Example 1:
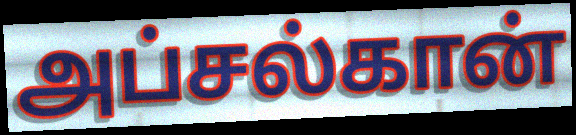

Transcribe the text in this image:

அப்சல்கான்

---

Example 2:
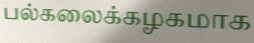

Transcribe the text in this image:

பல்கலைக்கழகமாக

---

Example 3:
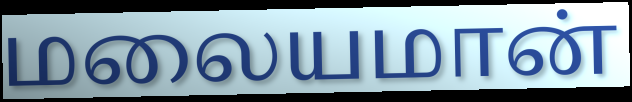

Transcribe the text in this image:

மலையமான்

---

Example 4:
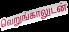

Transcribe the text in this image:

வெறுங்காலுடன்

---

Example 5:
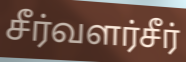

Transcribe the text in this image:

சீர்வளர்சீர்